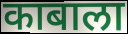
काबाला